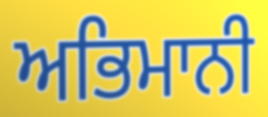
ਅਭਿਮਾਨੀ